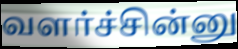
வளர்ச்சின்னு